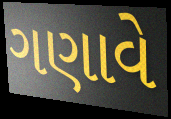
ગણાવે